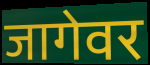
जागेवर